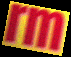
rm